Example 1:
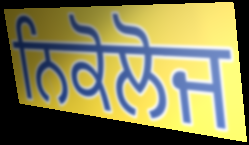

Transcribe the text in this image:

ਨਿਕੋਲੋਜ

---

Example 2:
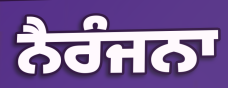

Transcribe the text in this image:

ਨੈਰੰਜਨਾ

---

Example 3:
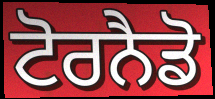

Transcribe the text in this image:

ਟੋਰਨੈਡੋ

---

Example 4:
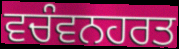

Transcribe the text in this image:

ਵਚੰਵਨਹਰਤ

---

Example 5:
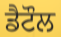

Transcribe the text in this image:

ਡੈਟੌਲ